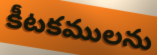
కీటకములను